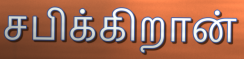
சபிக்கிறான்